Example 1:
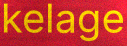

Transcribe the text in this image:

kelage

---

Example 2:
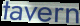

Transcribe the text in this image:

tavern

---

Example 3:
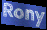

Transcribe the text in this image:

Rony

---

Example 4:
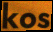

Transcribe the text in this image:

kos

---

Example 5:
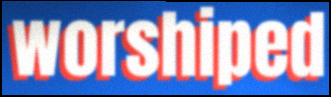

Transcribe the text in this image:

worshiped